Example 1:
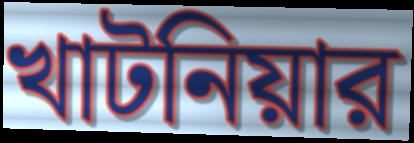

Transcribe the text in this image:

খাটনিয়ার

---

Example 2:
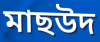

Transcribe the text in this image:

মাছউদ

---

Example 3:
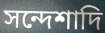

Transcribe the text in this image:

সন্দেশাদি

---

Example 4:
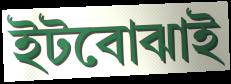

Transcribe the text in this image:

ইটবোঝাই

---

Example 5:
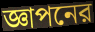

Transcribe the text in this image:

জ্ঞাপনের